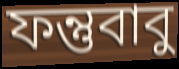
ফন্তুবাবু